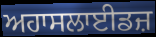
ਅਹਾਸਲਾਈਡਜ਼